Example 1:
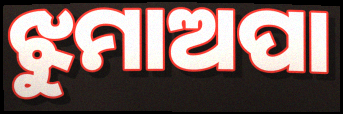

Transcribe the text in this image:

ଝୁମାଅପା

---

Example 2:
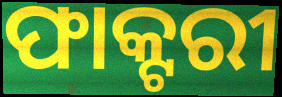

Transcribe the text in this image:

ଫାକ୍ଟରୀ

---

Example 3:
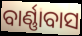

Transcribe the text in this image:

ବାର୍ଣ୍ଣାବାସ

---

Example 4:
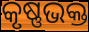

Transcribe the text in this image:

କୃଷ୍ଣଭକ୍ତ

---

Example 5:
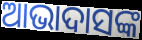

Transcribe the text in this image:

ଆଭାଦାସଙ୍କ